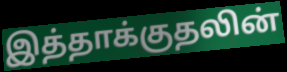
இத்தாக்குதலின்